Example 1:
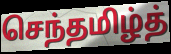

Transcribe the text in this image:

செந்தமிழ்த்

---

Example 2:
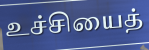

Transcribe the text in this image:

உச்சியைத்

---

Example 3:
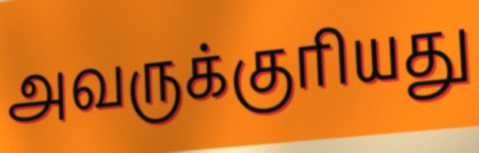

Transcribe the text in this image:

அவருக்குரியது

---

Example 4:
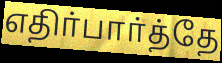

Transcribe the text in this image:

எதிர்பார்த்தே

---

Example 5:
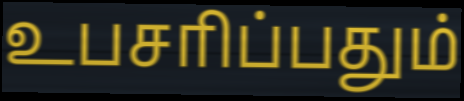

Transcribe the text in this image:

உபசரிப்பதும்